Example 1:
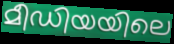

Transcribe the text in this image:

മീഡിയയിലെ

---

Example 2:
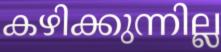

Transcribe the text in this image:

കഴിക്കുന്നില്ല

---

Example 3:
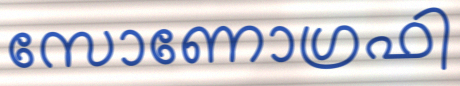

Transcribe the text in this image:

സോണോഗ്രഫി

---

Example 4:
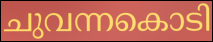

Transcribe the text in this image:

ചുവന്നകൊടി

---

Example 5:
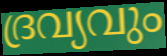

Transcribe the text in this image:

ദ്രവ്യവും